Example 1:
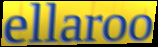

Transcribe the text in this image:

ellaroo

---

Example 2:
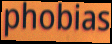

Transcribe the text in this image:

phobias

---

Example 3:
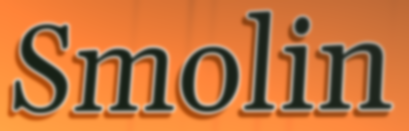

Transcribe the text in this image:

Smolin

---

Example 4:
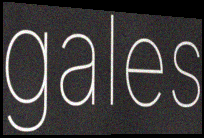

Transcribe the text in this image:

gales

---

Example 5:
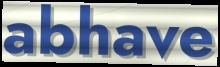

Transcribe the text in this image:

abhave